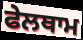
ਫੇਲਥਾਮ